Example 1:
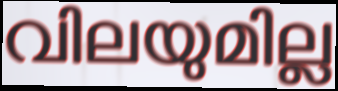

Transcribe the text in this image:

വിലയുമില്ല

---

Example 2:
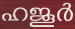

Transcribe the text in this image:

ഹജൂർ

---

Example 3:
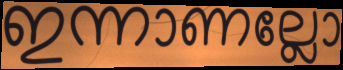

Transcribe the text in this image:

ഇന്നാണല്ലോ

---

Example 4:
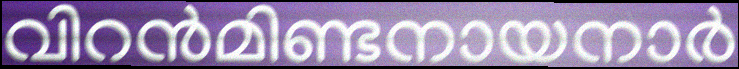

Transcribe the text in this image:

വിറൻമിണ്ടനായനാർ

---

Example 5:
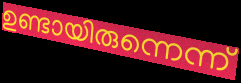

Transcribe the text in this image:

ഉണ്ടായിരുന്നെന്ന്